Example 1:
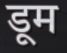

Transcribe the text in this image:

डूम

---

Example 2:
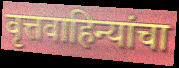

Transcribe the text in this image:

वृत्तवाहिन्यांचा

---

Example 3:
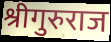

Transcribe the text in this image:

श्रीगुरुराज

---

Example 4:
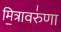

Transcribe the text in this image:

मि॒त्रावरु॑णा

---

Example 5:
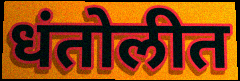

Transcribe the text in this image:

धंतोलीत